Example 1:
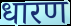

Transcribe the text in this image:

धारण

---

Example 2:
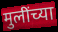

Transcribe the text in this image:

मुलींच्या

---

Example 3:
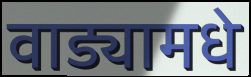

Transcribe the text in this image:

वाड्यामधे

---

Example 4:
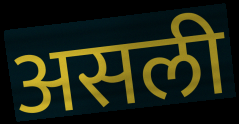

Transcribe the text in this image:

असली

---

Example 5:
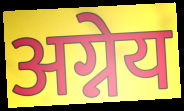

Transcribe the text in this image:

अग्नेय